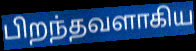
பிறந்தவளாகிய